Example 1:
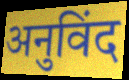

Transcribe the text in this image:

अनुविंद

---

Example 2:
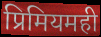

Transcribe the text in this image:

प्रिमियमही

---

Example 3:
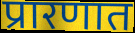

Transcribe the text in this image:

प्रारणात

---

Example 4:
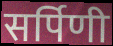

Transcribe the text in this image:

सर्पिणी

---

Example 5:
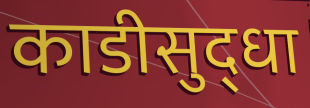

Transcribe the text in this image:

काडीसुद्धा